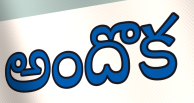
అందొక